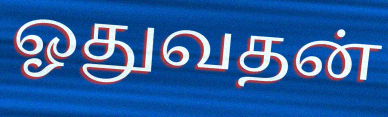
ஓதுவதன்